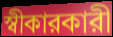
স্বীকারকারী